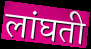
लांघती